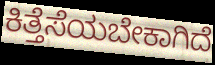
ಕಿತ್ತೆಸೆಯಬೇಕಾಗಿದೆ